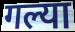
गल्या